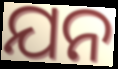
ଯନ